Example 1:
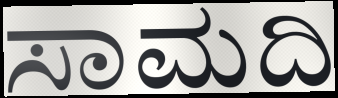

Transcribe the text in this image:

ಸಾಮದಿ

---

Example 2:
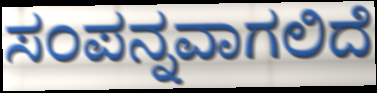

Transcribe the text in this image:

ಸಂಪನ್ನವಾಗಲಿದೆ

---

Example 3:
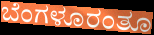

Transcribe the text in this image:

ಬೆಂಗಳೂರಂತೂ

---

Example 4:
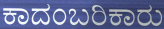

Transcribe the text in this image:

ಕಾದಂಬರಿಕಾರು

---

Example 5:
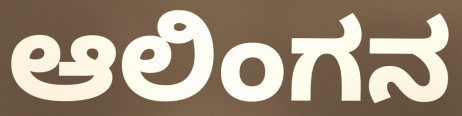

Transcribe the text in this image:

ಆಲಿಂಗನ